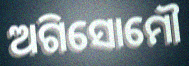
ଅଗିସୋମୌ